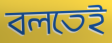
বলতেই